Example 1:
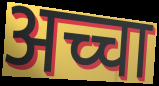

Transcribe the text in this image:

अच्चा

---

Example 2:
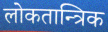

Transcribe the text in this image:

लोकतान्त्रिक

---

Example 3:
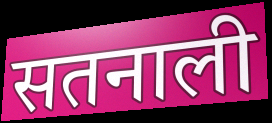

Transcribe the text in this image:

सतनाली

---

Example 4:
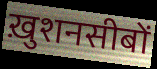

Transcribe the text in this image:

ख़ुशनसीबों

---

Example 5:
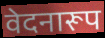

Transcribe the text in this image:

वेदनारूप